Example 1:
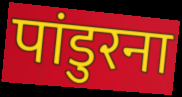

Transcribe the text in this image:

पांडुरना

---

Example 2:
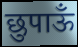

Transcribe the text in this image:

छुपाऊँ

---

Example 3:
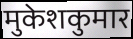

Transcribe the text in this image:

मुकेशकुमार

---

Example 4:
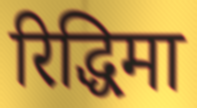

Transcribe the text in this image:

रिद्धिमा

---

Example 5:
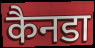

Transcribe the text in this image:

कैनडा